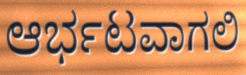
ಆರ್ಭಟವಾಗಲಿ